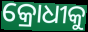
କ୍ରୋଧୀକୁ